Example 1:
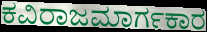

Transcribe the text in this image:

ಕವಿರಾಜಮಾರ್ಗಕಾರ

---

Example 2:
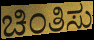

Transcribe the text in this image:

ಚಿಂತಿಸು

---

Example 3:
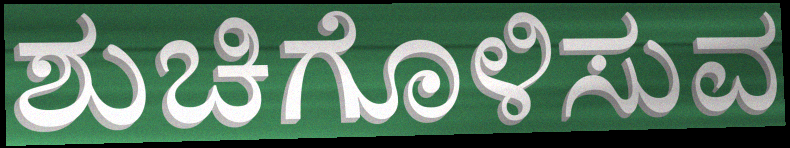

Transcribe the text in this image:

ಶುಚಿಗೊಳಿಸುವ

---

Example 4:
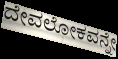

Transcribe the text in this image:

ದೇವಲೋಕವನ್ನೇ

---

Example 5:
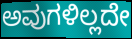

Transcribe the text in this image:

ಅವುಗಳಿಲ್ಲದೇ